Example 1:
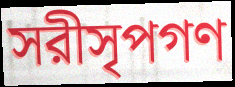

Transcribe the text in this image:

সরীসৃপগণ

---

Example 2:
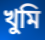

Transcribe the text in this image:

খুমি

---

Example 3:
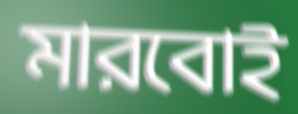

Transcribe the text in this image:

মারবোই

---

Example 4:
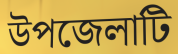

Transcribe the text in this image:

উপজেলাটি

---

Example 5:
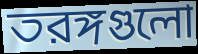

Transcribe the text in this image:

তরঙ্গগুলো